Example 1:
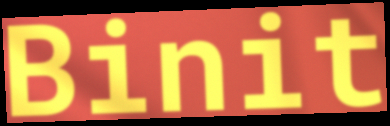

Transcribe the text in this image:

Binit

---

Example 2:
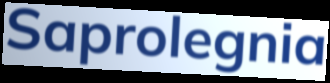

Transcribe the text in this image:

Saprolegnia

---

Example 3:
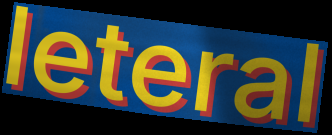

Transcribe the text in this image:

leteral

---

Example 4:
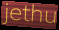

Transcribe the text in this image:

jethu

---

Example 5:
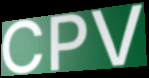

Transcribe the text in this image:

CPV